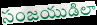
సంజయుడిలా